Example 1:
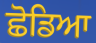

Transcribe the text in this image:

ਛੋਡਿਆ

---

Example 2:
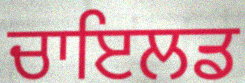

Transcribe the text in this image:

ਚਾਇਲਡ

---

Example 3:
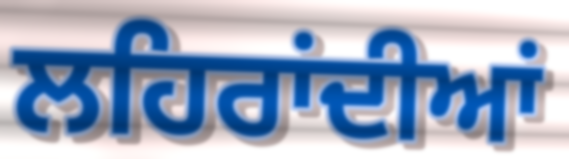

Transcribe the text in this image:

ਲਹਿਰਾਂਦੀਆਂ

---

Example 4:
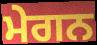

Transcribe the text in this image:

ਮੇਗਨ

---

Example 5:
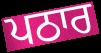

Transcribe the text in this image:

ਪਠਾਰ